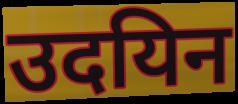
उदयिन